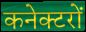
कनेक्टरों